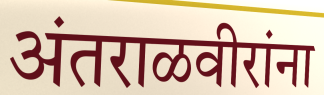
अंतराळवीरांना